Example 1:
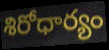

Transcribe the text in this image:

శిరోధార్యం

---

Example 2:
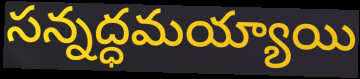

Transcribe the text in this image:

సన్నద్ధమయ్యాయి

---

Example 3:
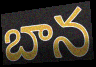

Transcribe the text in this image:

బాన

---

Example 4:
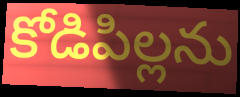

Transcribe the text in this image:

కోడిపిల్లను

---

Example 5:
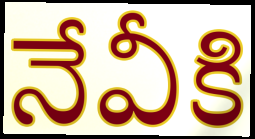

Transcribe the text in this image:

నేవీకి